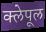
क्लेपूल